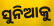
ସୁନିଆକୁ